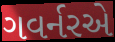
ગવર્નરએ